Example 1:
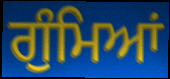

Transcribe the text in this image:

ਗੁੰਮਿਆਂ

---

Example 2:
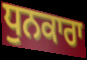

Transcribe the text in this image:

ਧੁਨਕਾਰਾ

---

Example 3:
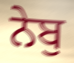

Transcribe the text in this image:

ਨੇਬੁ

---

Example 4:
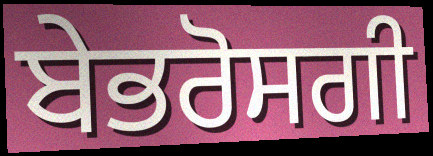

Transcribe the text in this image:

ਬੇਭਰੋਸਗੀ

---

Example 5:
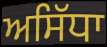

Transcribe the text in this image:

ਅਸਿੱਧਾ